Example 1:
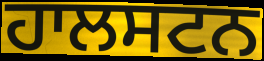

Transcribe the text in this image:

ਹਾਲਸਟਨ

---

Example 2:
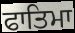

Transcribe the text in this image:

ਫਾਤਿਮਾ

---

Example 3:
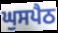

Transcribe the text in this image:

ਘੁਸਪੈਠ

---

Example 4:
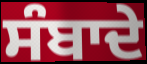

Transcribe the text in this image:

ਸੰਬਾਦੇ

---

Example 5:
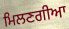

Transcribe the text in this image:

ਮਿਲਣਗੀਆ